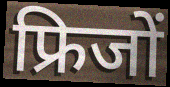
फ्रिजों